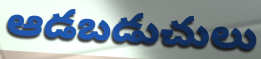
ఆడబడుచులు